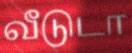
வீடுடா